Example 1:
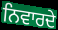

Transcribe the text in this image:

ਨਿਵਾਰਦੇ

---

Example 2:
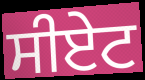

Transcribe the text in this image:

ਸੀਏਟ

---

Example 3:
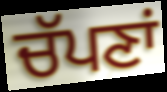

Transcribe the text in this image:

ਚੱਪਣਾਂ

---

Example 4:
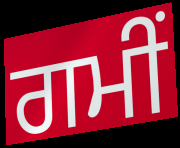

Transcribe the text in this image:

ਗਮੀਂ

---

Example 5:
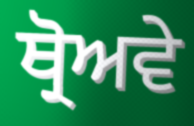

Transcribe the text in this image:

ਥ੍ਰੋਅਵੇ